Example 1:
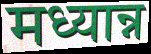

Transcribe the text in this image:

मध्यान्न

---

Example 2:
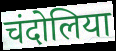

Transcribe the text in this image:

चंदोलिया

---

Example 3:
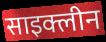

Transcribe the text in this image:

साइक्लीन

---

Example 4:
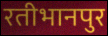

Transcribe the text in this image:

रतीभानपुर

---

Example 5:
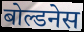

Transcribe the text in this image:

बोल्डनेस